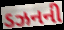
ડઝનની